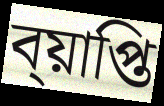
ব্য়াপ্তি